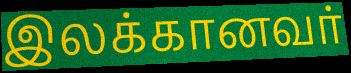
இலக்கானவர்